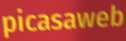
picasaweb